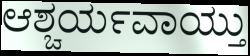
ಆಶ್ಚರ್ಯವಾಯ್ತು